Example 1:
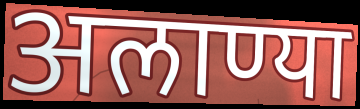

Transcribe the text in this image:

अलाण्या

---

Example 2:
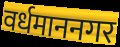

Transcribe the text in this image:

वर्धमाननगर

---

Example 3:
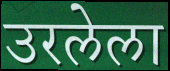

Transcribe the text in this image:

उरलेला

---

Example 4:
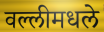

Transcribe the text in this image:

वल्लीमधले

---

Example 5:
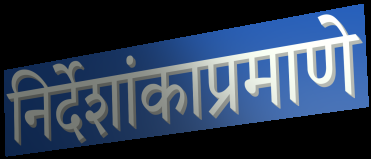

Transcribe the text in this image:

निर्देशांकाप्रमाणे